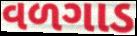
વળગાડ